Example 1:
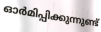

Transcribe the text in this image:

ഓർമിപ്പിക്കുന്നുണ്ട്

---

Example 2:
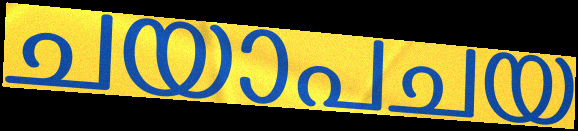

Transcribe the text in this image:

ചയാപചയ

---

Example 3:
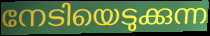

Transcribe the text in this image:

നേടിയെടുക്കുന്ന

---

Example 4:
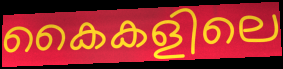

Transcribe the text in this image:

കൈകളിലെ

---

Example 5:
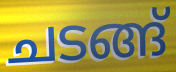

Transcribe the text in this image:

ചടങ്ങ്